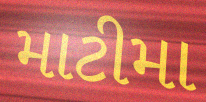
માટીમા